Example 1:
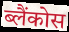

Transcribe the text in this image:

ब्लैंकोस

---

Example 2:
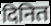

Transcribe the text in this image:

दिनित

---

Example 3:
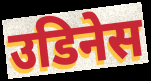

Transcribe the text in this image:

उडिनेस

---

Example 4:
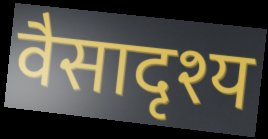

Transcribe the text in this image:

वैसादृश्य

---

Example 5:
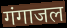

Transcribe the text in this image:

गंगाजल